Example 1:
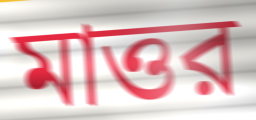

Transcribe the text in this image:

মাত্তর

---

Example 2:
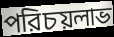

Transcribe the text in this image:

পরিচয়লাভ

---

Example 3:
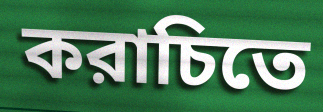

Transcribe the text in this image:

করাচিতে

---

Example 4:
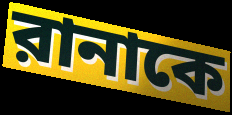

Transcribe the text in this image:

রানাকে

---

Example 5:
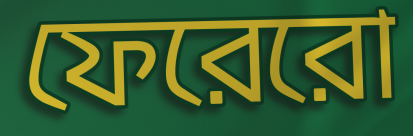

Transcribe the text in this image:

ফেরেরো